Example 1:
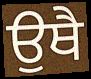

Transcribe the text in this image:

ਉਥੈ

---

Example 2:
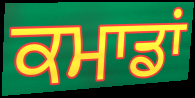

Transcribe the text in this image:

ਕਮਾਡਾਂ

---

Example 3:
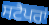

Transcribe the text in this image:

ਸਟੈਪਰਾਂ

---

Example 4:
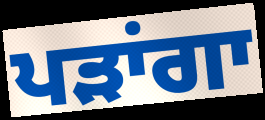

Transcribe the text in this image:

ਪੜਾਂਗਾ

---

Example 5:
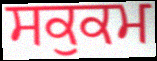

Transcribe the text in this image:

ਸਕੁਕਮ